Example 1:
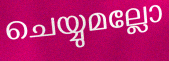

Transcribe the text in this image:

ചെയ്യുമല്ലോ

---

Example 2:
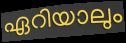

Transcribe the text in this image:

ഏറിയാലും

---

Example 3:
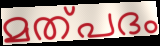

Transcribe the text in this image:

മത്പദം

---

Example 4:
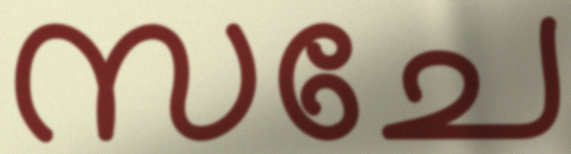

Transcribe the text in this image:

സചേ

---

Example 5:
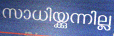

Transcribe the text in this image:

സാധിയ്ക്കുന്നില്ല